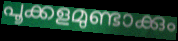
പൂക്കളമുണ്ടാക്കും